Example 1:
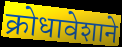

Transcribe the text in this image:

क्रोधावेशाने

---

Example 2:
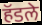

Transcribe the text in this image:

हॅडले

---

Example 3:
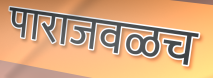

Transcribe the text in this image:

पाराजवळच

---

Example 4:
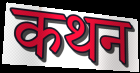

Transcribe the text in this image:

कथन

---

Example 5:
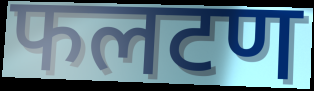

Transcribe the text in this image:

फलटण